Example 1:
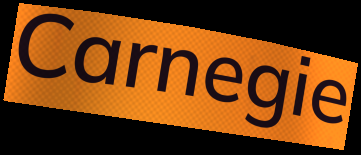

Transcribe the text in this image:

Carnegie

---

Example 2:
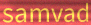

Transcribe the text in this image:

samvad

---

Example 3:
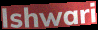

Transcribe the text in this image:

Ishwari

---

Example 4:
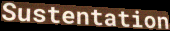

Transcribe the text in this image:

Sustentation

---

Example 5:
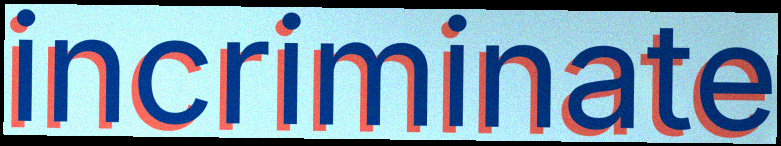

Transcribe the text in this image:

incriminate